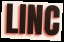
LINC